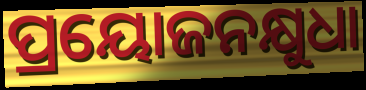
ପ୍ରୟୋଜନକ୍ଷୁଧା